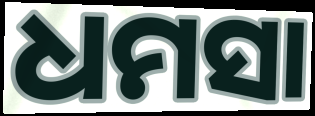
ଧମସା